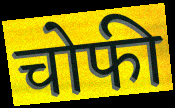
चोफी